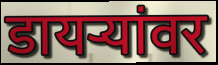
डायऱ्यांवर